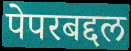
पेपरबद्दल